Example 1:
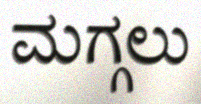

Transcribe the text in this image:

ಮಗ್ಗಲು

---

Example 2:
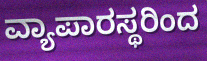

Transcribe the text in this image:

ವ್ಯಾಪಾರಸ್ಥರಿಂದ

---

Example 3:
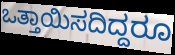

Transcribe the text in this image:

ಒತ್ತಾಯಿಸದಿದ್ದರೂ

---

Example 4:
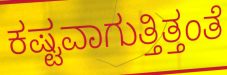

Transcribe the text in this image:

ಕಷ್ಟವಾಗುತ್ತಿತ್ತಂತೆ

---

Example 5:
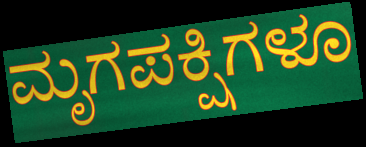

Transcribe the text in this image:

ಮೃಗಪಕ್ಷಿಗಳೂ